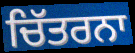
ਚਿੱਤਰਨਾ